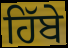
ਹਿੱਬੇ